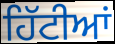
ਹਿੱਟੀਆਂ